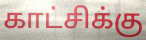
காட்சிக்கு